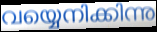
വയ്യെനിക്കിന്നു